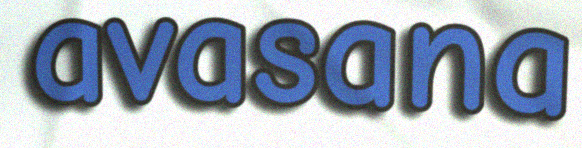
avasana